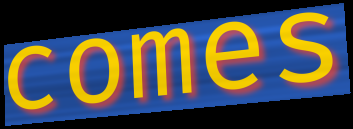
comes